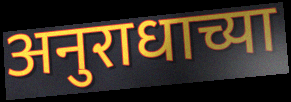
अनुराधाच्या